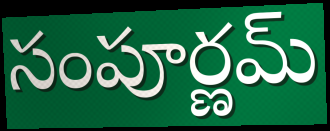
సంపూర్ణమ్